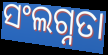
ସଂଲଗ୍ନତା